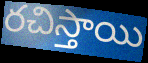
రచిస్తాయి